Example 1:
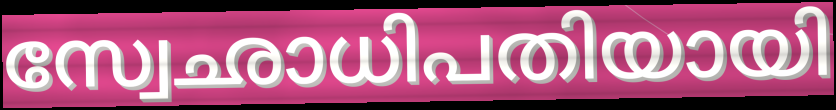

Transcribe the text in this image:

സ്വേഛാധിപതിയായി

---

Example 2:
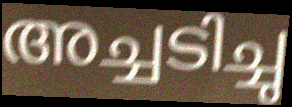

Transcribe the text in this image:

അച്ചടിച്ചു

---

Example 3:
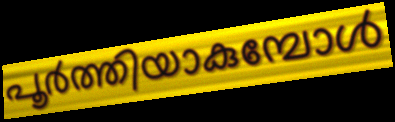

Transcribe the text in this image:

പൂർത്തിയാകുമ്പോൾ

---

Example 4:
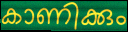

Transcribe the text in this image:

കാണിക്കും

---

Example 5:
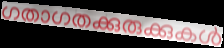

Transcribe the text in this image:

ഗതാഗതക്കുരുക്കുകൾ